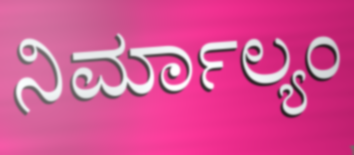
ನಿರ್ಮಾಲ್ಯಂ